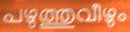
പഴുത്തുവീഴും